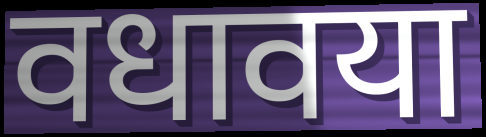
वधावया